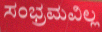
ಸಂಭ್ರಮವಿಲ್ಲ